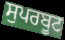
ਸੁਪਰਬੂਟ